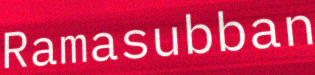
Ramasubban